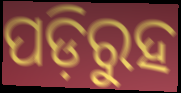
ପଡ଼ିରୁହ